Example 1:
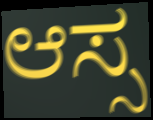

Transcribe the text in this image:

ಆಸ್ಸ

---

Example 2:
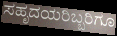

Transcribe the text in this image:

ಸಹೃದಯರಿಬ್ಬರಿಗೂ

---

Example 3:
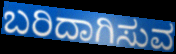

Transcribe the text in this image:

ಬರಿದಾಗಿಸುವ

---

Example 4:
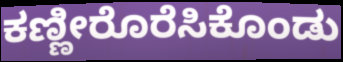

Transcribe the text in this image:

ಕಣ್ಣೀರೊರೆಸಿಕೊಂಡು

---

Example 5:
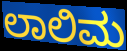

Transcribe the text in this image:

ಲಾಲಿಮ